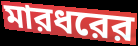
মারধরের